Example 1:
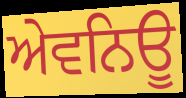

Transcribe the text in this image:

ਅੇਵਨਿਊ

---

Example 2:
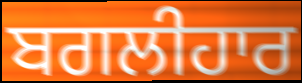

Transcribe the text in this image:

ਬਗਲੀਹਾਰ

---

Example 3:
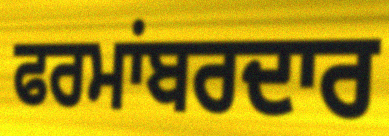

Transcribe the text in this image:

ਫਰਮਾਂਬਰਦਾਰ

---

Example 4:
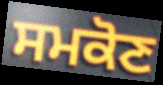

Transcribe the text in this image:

ਸਮਕੋਣ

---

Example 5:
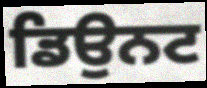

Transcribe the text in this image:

ਡਿਉਨਟ